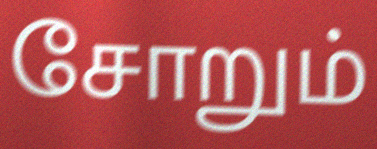
சோறும்